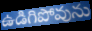
ఉడిగిపోవును